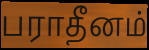
பராதீனம்